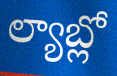
ల్యాబ్లో